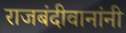
राजबंदीवानांनी